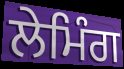
ਲੇਮਿੰਗ